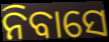
ନିବାସେ